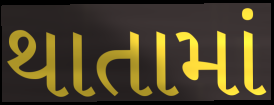
થાતામાં